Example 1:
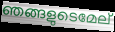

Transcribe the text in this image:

ഞങ്ങളുടെമേല്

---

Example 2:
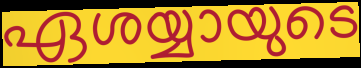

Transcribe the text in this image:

ഏശയ്യായുടെ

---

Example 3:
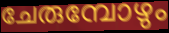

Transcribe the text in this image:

ചേരുമ്പോഴും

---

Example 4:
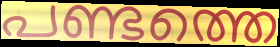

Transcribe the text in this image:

പണ്ടത്തെ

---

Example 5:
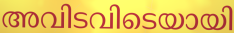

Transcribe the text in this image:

അവിടവിടെയായി